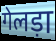
गेलड़ा